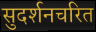
सुदर्शनचरित